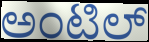
ಅಂಟಿಲ್